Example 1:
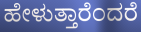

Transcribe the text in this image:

ಹೇಳುತ್ತಾರೆಂದರೆ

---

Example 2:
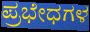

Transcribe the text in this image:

ಪ್ರಭೇಧಗಳ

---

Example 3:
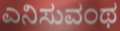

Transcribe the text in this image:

ಎನಿಸುವಂಥ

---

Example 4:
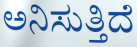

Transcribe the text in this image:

ಅನಿಸುತ್ತಿದೆ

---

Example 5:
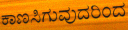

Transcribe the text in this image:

ಕಾಣಸಿಗುವುದರಿಂದ